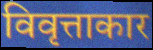
विवृत्ताकार